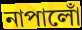
নাপালোঁ